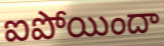
ఐపోయిందా